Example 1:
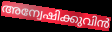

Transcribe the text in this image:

അന്വേഷിക്കുവിൻ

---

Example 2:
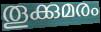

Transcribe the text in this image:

തൂക്കുമരം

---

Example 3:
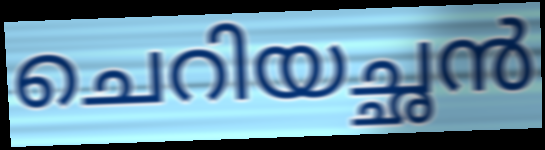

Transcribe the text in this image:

ചെറിയച്ഛൻ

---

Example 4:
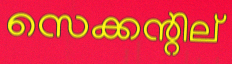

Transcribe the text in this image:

സെക്കന്റില്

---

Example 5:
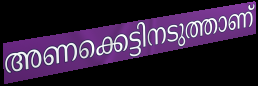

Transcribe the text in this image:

അണക്കെട്ടിനടുത്താണ്